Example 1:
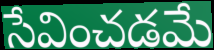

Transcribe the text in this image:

సేవించడమే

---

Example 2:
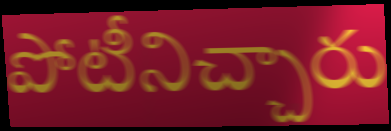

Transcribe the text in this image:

పోటీనిచ్చారు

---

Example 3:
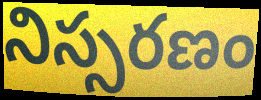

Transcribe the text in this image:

నిస్సరణం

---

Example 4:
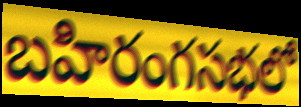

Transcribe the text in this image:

బహిరంగసభలో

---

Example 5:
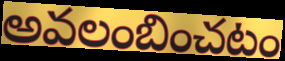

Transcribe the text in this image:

అవలంబించటం